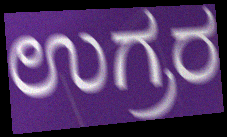
ಉಗ್ರರ